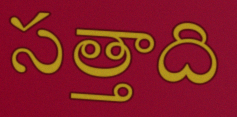
సత్తాది